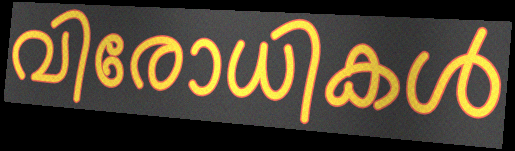
വിരോധികൾ